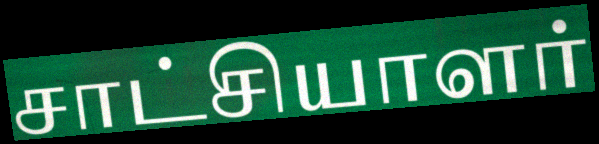
சாட்சியாளர்